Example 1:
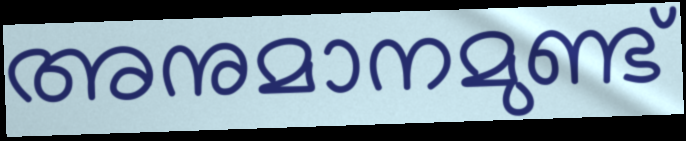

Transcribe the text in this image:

അനുമാനമുണ്ട്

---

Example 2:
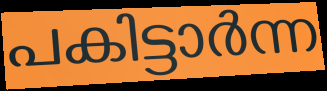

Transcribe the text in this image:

പകിട്ടാർന്ന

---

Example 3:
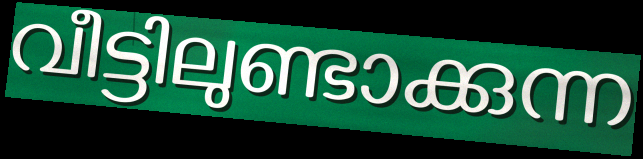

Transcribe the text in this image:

വീട്ടിലുണ്ടാക്കുന്ന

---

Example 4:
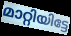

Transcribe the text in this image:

മാറ്റിയിട്ടേ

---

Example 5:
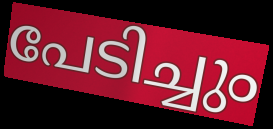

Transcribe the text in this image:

പേടിച്ചും